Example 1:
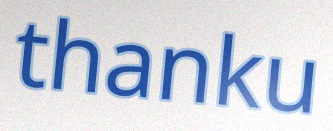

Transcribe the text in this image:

thanku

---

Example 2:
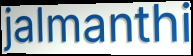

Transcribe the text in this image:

jalmanthi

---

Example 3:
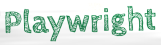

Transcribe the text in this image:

Playwright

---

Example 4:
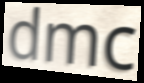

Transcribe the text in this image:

dmc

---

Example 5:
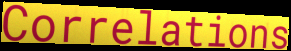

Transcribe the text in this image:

Correlations